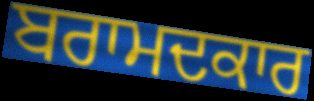
ਬਰਾਮਦਕਾਰ